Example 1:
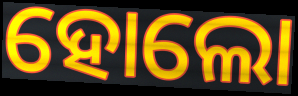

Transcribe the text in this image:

ହୋଲୋ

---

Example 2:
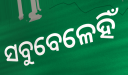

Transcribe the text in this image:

ସବୁବେଳେହିଁ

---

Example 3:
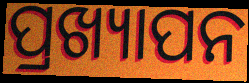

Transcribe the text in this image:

ପ୍ରଖ୍ୟାପନ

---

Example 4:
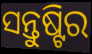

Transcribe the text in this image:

ସନ୍ତୁଷ୍ଟିର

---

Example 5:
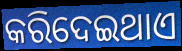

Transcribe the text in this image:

କରିଦେଇଥାଏ